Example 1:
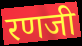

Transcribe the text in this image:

रणजी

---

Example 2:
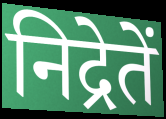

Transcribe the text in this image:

निद्रेतें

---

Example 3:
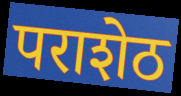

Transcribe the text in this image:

पराशेठ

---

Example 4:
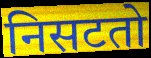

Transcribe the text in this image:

निसटतो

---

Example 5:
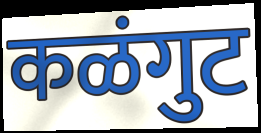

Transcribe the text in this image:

कळंगुट